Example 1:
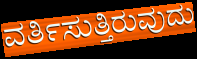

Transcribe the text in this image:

ವರ್ತಿಸುತ್ತಿರುವುದು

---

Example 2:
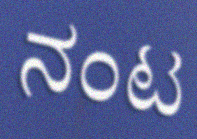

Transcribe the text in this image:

ನಂಟ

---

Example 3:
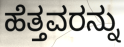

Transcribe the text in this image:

ಹೆತ್ತವರನ್ನು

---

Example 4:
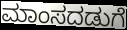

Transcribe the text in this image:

ಮಾಂಸದಡುಗೆ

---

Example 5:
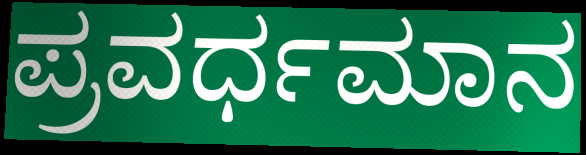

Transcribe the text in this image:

ಪ್ರವರ್ಧಮಾನ